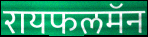
रायफलमॅन